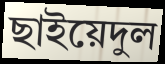
ছাইয়েদুল